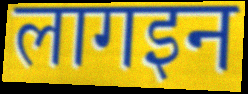
लागइन